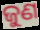
ଜୁଣ